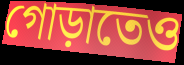
গোড়াতেও